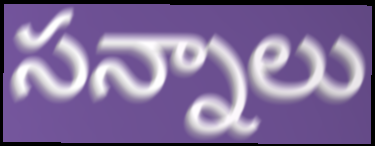
సన్నాలు